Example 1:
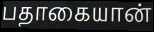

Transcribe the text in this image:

பதாகையான்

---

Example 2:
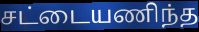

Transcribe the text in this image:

சட்டையணிந்த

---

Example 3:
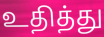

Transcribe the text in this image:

உதித்து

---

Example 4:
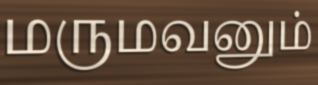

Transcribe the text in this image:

மருமவனும்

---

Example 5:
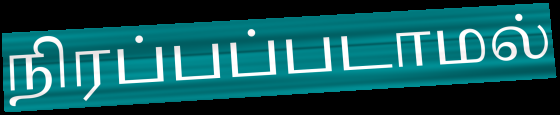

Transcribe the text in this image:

நிரப்பப்படாமல்